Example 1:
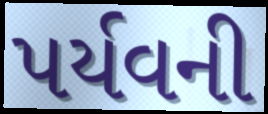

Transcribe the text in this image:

પર્યવની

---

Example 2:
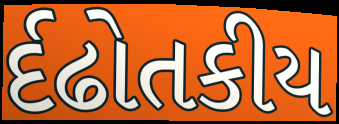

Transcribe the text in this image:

ર્દઢોતકીય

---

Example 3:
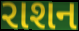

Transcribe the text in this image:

રાશન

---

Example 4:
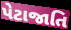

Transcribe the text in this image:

પેટાજાતિ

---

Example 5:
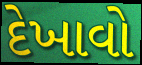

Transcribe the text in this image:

દેખાવો